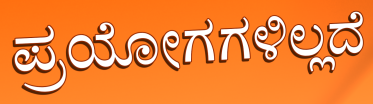
ಪ್ರಯೋಗಗಳಿಲ್ಲದೆ